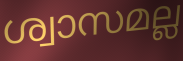
ശ്വാസമല്ല